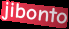
jibonto